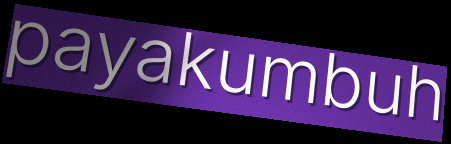
payakumbuh